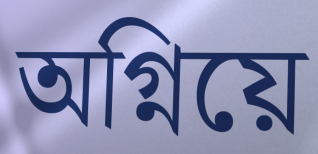
অগ্নিয়ে